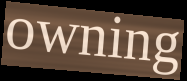
owning